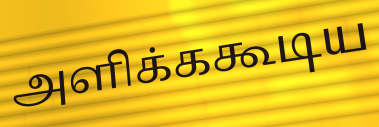
அளிக்ககூடிய